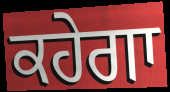
ਕਹੇਗਾ